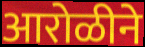
आरोळीने